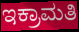
ಇಕ್ರಾಮತಿ